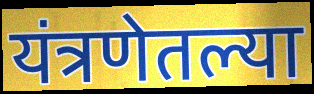
यंत्रणेतल्या